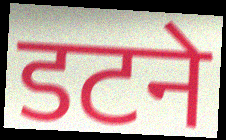
डटने